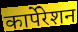
कार्पेरेशन